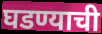
घडण्याची